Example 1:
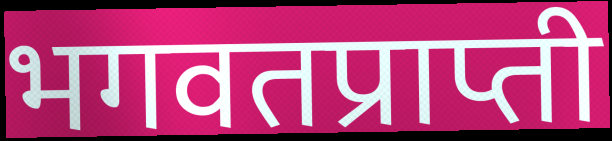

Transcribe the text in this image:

भगवतप्राप्ती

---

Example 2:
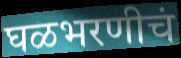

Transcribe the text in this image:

घळभरणीचं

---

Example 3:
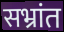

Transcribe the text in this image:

सभ्रांत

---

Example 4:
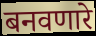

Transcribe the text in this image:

बनवणारे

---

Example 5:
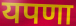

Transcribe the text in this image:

यपणा